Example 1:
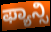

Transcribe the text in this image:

ಫ್ಯಾನ್ಸಿ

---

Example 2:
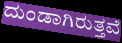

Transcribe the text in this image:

ದುಂಡಾಗಿರುತ್ತವೆ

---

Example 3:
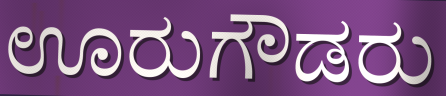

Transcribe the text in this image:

ಊರುಗೌಡರು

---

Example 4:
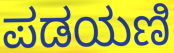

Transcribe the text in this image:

ಪಡಯಣಿ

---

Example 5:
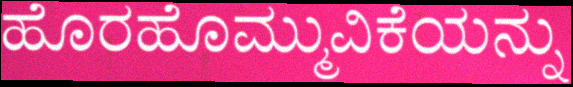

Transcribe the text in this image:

ಹೊರಹೊಮ್ಮುವಿಕೆಯನ್ನು